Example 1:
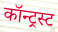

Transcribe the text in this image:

कॉन्ट्रस्ट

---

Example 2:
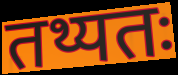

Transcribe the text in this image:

तथ्यतः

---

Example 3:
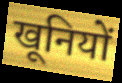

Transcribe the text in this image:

खूनियों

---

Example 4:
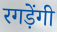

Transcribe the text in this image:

रगड़ेंगी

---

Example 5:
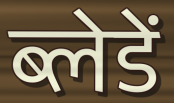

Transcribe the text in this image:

ब्लेडें